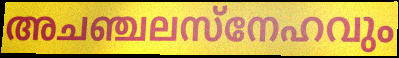
അചഞ്ചലസ്നേഹവും